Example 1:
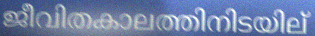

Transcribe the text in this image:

ജീവിതകാലത്തിനിടയില്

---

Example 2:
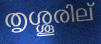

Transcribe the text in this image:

തൃശ്ശൂരില്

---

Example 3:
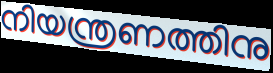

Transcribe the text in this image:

നിയന്ത്രണത്തിനു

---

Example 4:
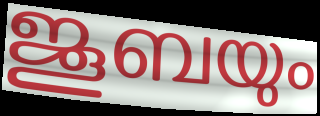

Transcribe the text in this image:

ജൂബയും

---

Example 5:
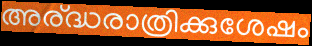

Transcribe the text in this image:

അര്ദ്ധരാത്രിക്കുശേഷം